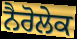
ਨੈਰੋਲੇਕ